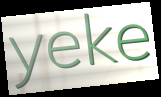
yeke